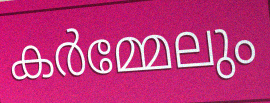
കർമ്മേലും